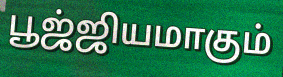
பூஜ்ஜியமாகும்